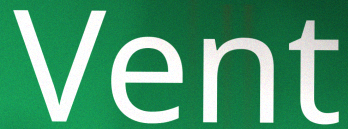
Vent